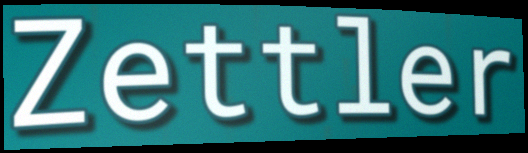
Zettler